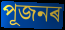
পূজনৰ